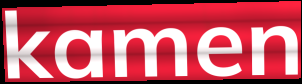
kamen